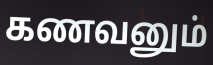
கணவனும்